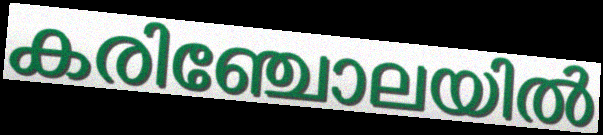
കരിഞ്ചോലയിൽ